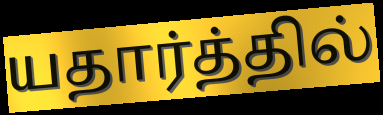
யதார்த்தில்